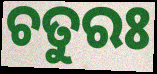
ଚତୁରଃ